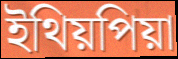
ইথিয়পিয়া